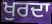
ਖੁਰਦਾ